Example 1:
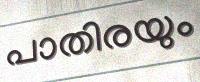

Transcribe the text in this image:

പാതിരയും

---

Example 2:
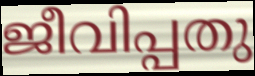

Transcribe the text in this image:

ജീവിപ്പതു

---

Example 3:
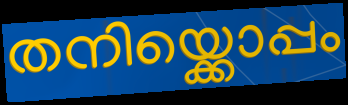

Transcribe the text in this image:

തനിയ്ക്കൊപ്പം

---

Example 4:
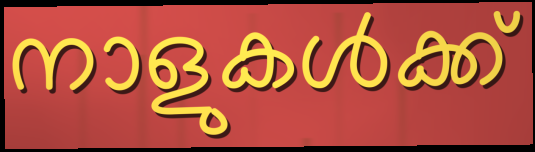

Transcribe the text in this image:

നാളുകൾക്ക്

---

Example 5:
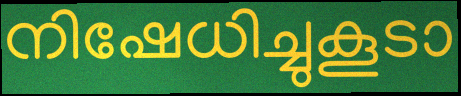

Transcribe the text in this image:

നിഷേധിച്ചുകൂടാ